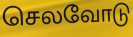
செலவோடு